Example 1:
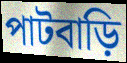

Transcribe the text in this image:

পাটবাড়ি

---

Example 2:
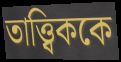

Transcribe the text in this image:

তাত্ত্বিককে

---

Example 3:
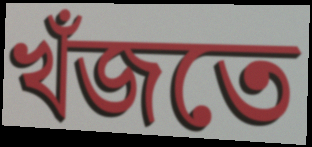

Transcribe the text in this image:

খঁজতে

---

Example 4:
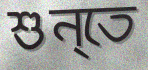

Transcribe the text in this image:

শুন্‌তে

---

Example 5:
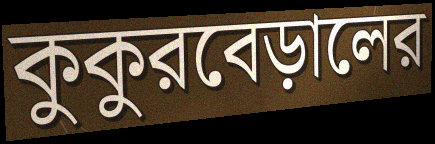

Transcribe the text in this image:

কুকুরবেড়ালের